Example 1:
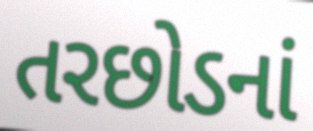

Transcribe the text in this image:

તરછોડનાં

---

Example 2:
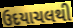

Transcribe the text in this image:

ઉદયાચલથી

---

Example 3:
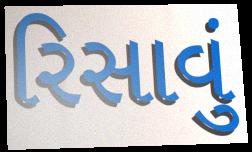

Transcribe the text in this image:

રિસાવું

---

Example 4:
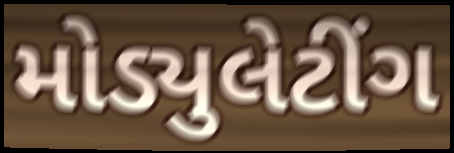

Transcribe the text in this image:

મોડ્યુલેટીંગ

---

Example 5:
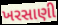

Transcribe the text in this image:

ખરસાણી